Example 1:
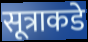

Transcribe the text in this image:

सूत्राकडे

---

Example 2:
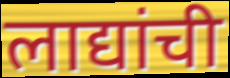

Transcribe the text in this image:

लाद्यांची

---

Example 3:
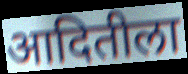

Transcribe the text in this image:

आदितीला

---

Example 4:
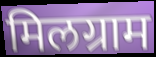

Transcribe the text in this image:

मिलग्राम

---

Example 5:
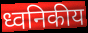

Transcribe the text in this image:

ध्वनिकीय